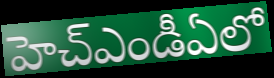
హెచ్ఎండీఏలో